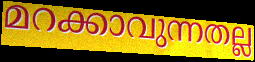
മറക്കാവുന്നതല്ല